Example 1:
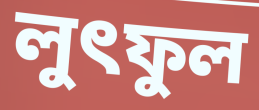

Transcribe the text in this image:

লুৎফুল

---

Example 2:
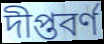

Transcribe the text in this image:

দীপ্তবর্ণ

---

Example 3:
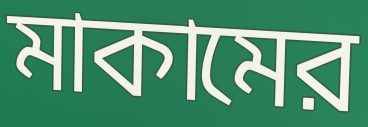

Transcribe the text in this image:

মাকামের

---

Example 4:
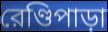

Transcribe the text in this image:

রেণ্ডিপাড়া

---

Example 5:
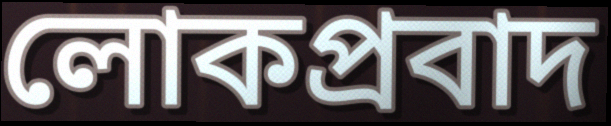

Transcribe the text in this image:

লোকপ্রবাদ